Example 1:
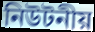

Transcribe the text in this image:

নিউটনীয়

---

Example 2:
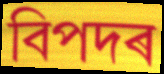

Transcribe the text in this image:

বিপদৰ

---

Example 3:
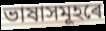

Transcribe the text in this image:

ভাষাসমূহৰে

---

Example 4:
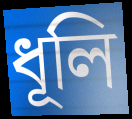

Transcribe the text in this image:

ধূলি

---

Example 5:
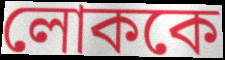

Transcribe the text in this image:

লোককে